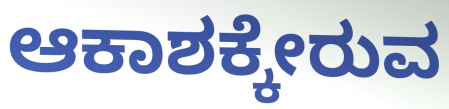
ಆಕಾಶಕ್ಕೇರುವ